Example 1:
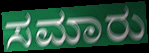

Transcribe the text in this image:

ಸಮಾರು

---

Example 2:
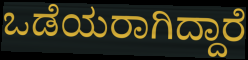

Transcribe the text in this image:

ಒಡೆಯರಾಗಿದ್ದಾರೆ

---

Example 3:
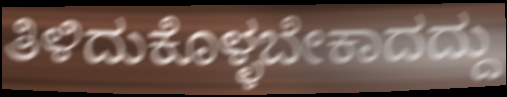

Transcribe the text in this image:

ತಿಳಿದುಕೊಳ್ಳಬೇಕಾದದ್ದು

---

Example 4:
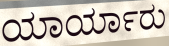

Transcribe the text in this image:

ಯಾರ್ಯಾರು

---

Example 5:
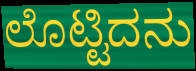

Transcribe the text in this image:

ಲೊಟ್ಟಿದನು